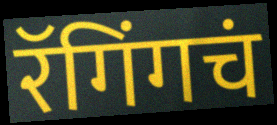
रॅगिंगचं